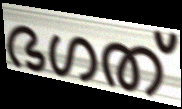
ഭഗത്